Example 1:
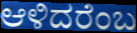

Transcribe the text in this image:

ಆಳಿದರೆಂಬ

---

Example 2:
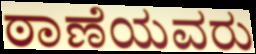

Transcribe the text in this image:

ಠಾಣೆಯವರು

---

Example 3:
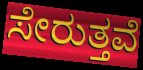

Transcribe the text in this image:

ಸೇರುತ್ತವೆ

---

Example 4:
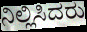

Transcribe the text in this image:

ನಿಲ್ಲಿಸಿದರು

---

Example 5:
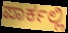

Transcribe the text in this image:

ಪಾರ್ಕಲ್ಲಿ